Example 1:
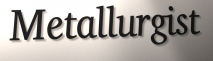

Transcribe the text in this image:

Metallurgist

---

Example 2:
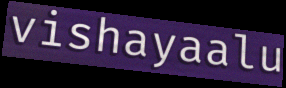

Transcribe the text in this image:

vishayaalu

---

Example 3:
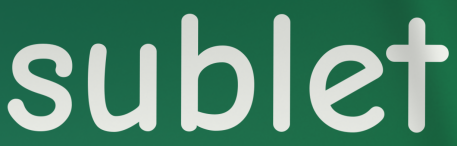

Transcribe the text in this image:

sublet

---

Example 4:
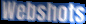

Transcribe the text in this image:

Webshots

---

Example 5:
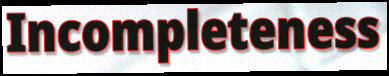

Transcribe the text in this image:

Incompleteness